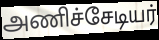
அணிச்சேடியர்